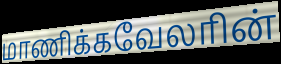
மாணிக்கவேலரின்